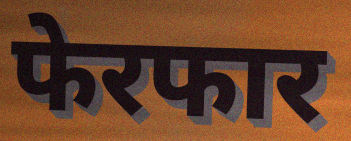
फेरफार